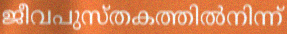
ജീവപുസ്തകത്തിൽനിന്ന്